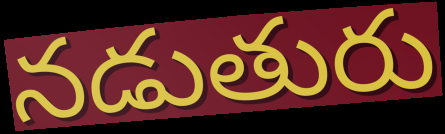
నడుతురు